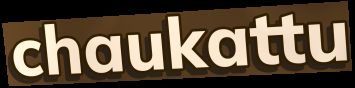
chaukattu